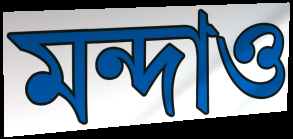
মন্দাও